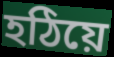
হঠিয়ে